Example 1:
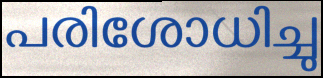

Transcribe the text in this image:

പരിശോധിച്ചു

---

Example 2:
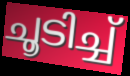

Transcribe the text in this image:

ചൂടിച്ച്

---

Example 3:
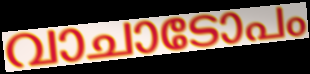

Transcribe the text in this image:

വാചാടോപം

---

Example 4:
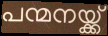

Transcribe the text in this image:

പന്മനയ്ക്ക്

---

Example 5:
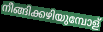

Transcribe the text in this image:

നീങ്ങിക്കഴിയുമ്പോള്